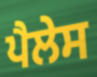
ਪੈਲੇਸ